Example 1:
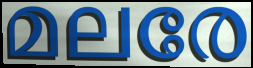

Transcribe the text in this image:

മലരേ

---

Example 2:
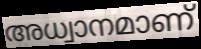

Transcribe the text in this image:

അധ്വാനമാണ്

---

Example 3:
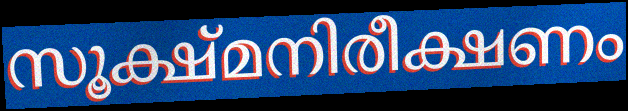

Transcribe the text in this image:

സൂക്ഷ്മനിരീക്ഷണം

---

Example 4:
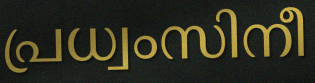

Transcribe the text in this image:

പ്രധ്വംസിനീ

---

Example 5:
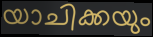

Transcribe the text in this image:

യാചിക്കയും